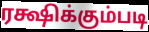
ரக்ஷிக்கும்படி